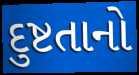
દુષ્ટતાનો